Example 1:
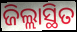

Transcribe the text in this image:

ଜିଲ୍ଲାସ୍ଥିତ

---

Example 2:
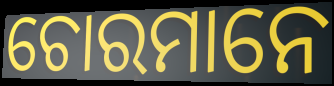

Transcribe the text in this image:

ଚୋରମାନେ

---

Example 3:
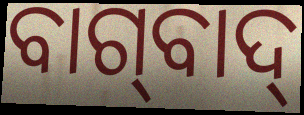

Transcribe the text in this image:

ବାଗ୍‌ବାଦ୍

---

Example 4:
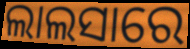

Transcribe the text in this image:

ଲାଲସାରେ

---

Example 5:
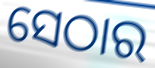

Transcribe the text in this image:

ସେଠାର